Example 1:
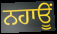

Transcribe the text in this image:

ਨਹਾਊਂ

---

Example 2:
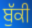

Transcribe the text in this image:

ਬੁੱਕੀ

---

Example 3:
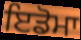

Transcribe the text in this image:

ਇਡੋਮਾ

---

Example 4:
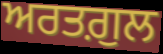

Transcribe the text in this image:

ਅਰਤਗ਼ੁਲ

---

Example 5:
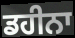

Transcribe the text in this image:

ਡਹੀਨਾ